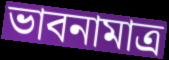
ভাবনামাত্র